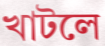
খাটলে